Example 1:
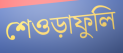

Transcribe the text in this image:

শেওড়াফুলি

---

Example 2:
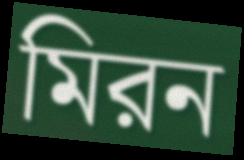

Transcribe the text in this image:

মিরন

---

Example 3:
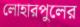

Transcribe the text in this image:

লোহারপুলের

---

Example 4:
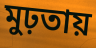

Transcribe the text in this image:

মুঢ়তায়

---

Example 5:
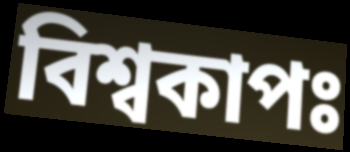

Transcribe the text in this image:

বিশ্বকাপঃ